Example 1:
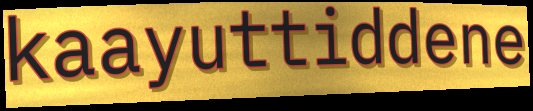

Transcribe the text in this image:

kaayuttiddene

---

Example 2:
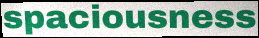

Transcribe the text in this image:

spaciousness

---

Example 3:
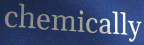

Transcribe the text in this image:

chemically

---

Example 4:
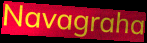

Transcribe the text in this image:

Navagraha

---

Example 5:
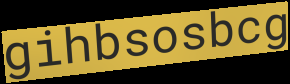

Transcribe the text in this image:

gihbsosbcg